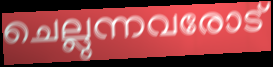
ചെല്ലുന്നവരോട്